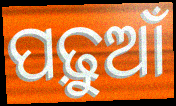
ପଢ଼ୁଆଁ